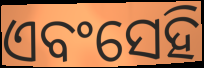
ଏବଂସେହି